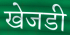
खेजडी